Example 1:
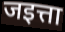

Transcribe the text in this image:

जइत्ता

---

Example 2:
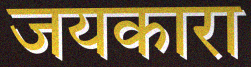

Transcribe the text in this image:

जयकारा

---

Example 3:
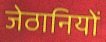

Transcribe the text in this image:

जेठानियों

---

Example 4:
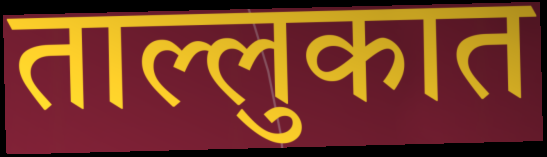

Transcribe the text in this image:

ताल्लुकात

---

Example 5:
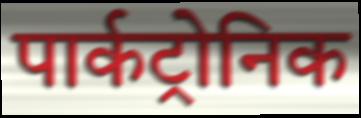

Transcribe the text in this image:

पार्कट्रोनिक